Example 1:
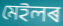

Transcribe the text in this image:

মেইলৰ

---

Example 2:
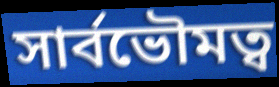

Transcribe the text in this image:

সাৰ্বভৌমত্ব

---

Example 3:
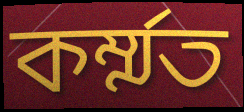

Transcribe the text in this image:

কৰ্ম্মত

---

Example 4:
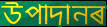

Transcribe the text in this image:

উপাদানৰ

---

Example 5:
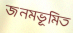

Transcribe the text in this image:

জনমভূমিত